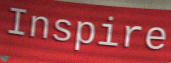
Inspire